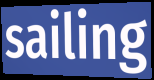
sailing